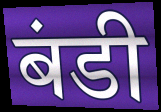
बंडी